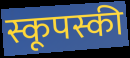
स्कूपस्की